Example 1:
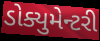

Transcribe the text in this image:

ડોક્યુમેન્ટરી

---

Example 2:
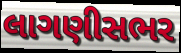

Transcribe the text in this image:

લાગણીસભર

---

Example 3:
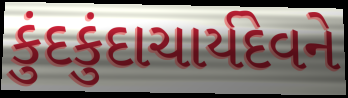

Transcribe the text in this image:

કુંદકુંદાચાર્યદેવને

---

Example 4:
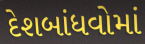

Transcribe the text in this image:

દેશબાંધવોમાં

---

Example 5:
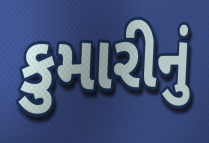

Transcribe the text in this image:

કુમારીનું